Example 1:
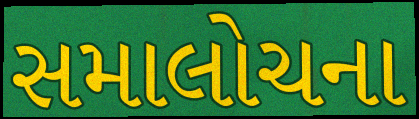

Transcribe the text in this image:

સમાલોચના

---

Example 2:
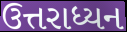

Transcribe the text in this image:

ઉત્તરાધ્યન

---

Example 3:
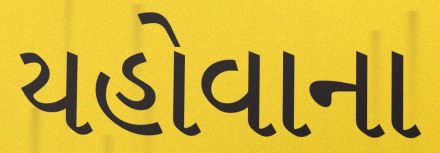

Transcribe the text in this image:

યહોવાના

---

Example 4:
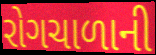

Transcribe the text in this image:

રોગચાળાની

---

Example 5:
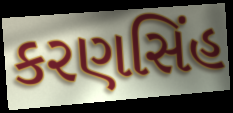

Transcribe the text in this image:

કરણસિંહ